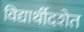
विद्यार्थीदशेत